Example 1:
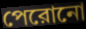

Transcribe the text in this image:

পেরোনো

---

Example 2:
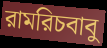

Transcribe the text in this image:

রামরিচবাবু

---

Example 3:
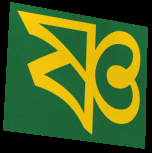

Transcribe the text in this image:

ষ্ণ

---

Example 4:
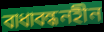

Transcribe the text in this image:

বাধাবন্ধনহীন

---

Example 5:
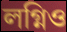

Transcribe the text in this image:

লগ্নিও